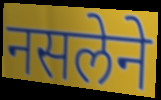
नसलेने